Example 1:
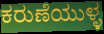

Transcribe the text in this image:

ಕರುಣೆಯುಳ್ಳ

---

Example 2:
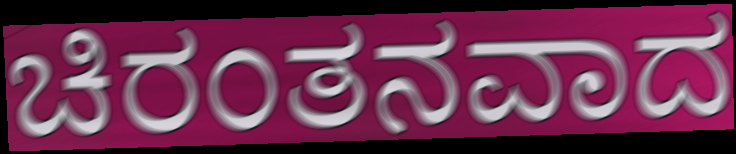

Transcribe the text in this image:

ಚಿರಂತನವಾದ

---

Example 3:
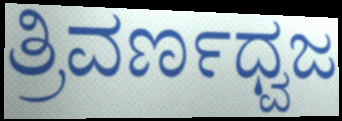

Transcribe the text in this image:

ತ್ರಿವರ್ಣಧ್ವಜ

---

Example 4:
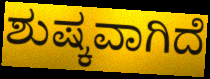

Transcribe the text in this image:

ಶುಷ್ಕವಾಗಿದೆ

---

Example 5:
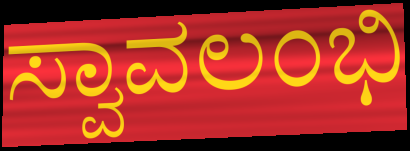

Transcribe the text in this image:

ಸ್ವಾವಲಂಭಿ